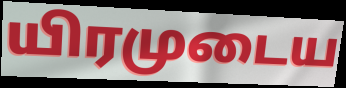
யிரமுடைய